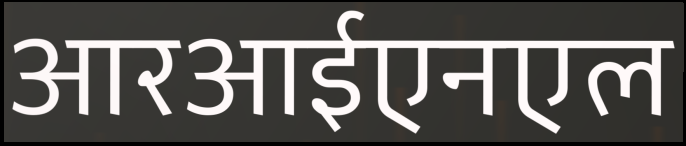
आरआईएनएल